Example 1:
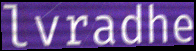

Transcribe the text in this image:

lvradhe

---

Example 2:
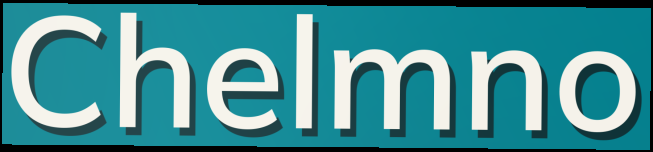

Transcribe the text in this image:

Chelmno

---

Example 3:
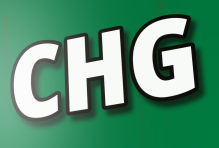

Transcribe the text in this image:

CHG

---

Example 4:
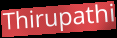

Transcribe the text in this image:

Thirupathi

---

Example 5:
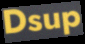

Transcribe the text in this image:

Dsup